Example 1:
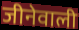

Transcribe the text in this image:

जीनेवाली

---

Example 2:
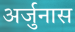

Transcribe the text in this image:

अर्जुनास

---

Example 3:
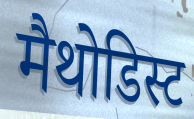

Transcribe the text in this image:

मैथोडिस्ट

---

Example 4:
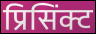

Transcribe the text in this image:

प्रिसिंक्ट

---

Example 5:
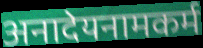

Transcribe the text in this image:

अनादेयनामकर्म